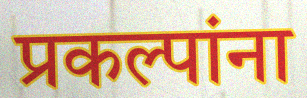
प्रकल्पांना